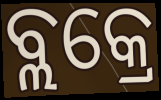
ବ୍ଲକ୍ରେ